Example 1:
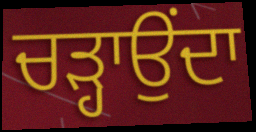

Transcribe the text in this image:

ਚੜ੍ਹਾਉਂਦਾ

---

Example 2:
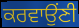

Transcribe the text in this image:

ਕਰਵਾਉਂਣੀ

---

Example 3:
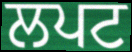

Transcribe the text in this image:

ਲਪਟ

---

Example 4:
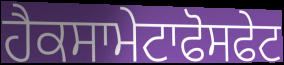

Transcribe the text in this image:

ਹੈਕਸਾਮੇਟਾਫੋਸਫੇਟ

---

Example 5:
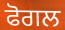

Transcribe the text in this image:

ਫੋਗਲ